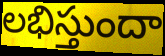
లభిస్తుందా